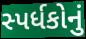
સ્પર્ધકોનું